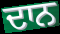
ਦਾਨ